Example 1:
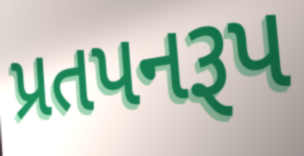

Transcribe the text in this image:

પ્રતપનરૂપ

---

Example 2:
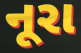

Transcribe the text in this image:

નૂરા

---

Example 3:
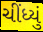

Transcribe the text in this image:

ચીંધ્યું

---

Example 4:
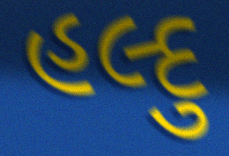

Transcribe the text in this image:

હલ્દુ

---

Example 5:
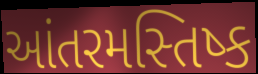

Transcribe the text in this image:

આંતરમસ્તિષ્ક